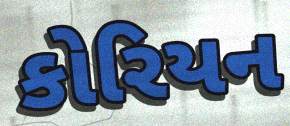
કોરિયન